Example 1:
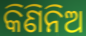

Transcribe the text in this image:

କିଣିନିଅ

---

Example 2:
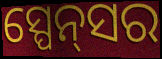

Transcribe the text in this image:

ସ୍ପେନ୍‌ସର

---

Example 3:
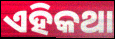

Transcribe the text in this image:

ଏହିକଥା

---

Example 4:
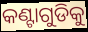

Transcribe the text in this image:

କଣ୍ଟାଗୁଡିକୁ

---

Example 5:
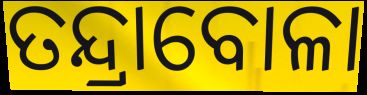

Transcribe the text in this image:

ତନ୍ଦ୍ରାବୋଳା